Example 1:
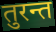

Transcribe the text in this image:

तुरन्त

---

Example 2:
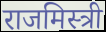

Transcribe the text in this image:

राजमिस्त्री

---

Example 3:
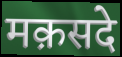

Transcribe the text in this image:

मक़सदे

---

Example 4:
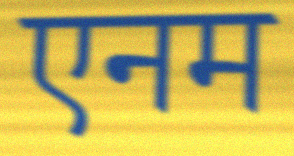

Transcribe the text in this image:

एनम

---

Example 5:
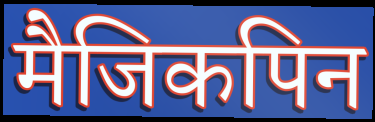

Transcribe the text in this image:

मैजिकपिन